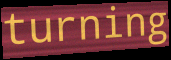
turning